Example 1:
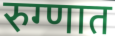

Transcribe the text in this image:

रुग्णात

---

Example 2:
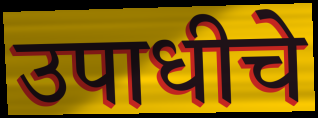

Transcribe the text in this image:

उपाधीचे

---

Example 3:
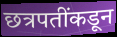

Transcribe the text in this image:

छत्रपतींकडून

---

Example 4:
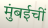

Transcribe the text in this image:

मुंबईचीं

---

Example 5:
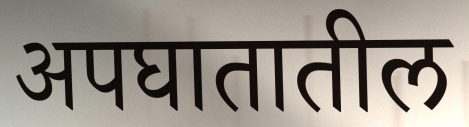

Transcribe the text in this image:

अपघातातील